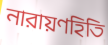
নারায়ণহিতি